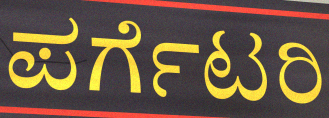
ಪರ್ಗೆಟರಿ